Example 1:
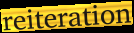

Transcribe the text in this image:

reiteration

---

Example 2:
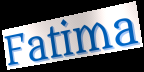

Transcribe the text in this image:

Fatima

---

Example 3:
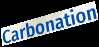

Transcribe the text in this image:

Carbonation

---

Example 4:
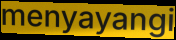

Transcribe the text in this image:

menyayangi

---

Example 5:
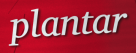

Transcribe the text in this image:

plantar